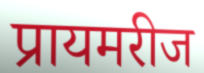
प्रायमरीज